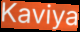
Kaviya